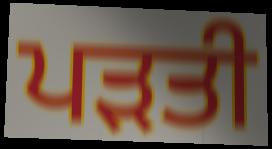
ਪੜਤੀ